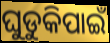
ଘୁଡୁକିପାଇଁ